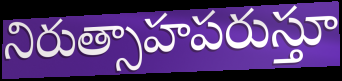
నిరుత్సాహపరుస్తూ